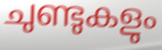
ചുണ്ടുകളും